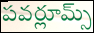
పవర్లూమ్స్